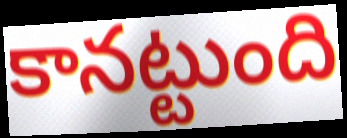
కానట్టుంది